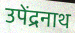
उपेंद्रनाथ